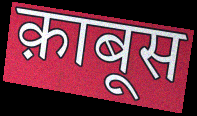
क़ाबूस